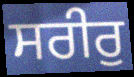
ਸਰੀਰੁ